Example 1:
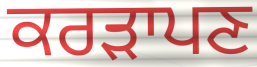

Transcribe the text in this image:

ਕਰੜਾਪਣ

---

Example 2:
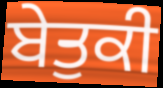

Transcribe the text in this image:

ਬੇਤੁਕੀ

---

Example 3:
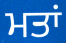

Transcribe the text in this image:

ਮਤਾਂ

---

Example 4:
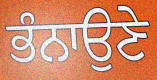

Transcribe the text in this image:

ਭੰਨਾਉਣੇ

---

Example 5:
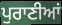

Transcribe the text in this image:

ਪੁਰਾਣੀਆਂ